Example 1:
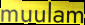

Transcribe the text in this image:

muulam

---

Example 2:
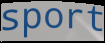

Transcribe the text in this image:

sport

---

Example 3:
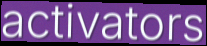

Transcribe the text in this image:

activators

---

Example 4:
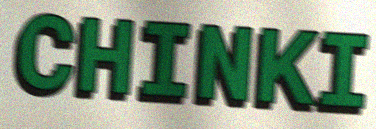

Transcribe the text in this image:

CHINKI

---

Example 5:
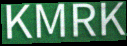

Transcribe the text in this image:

KMRK